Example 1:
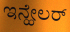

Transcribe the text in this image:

ಇನ್ಹೇಲರ್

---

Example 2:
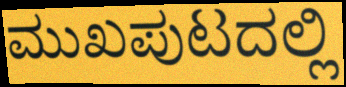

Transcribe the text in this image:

ಮುಖಪುಟದಲ್ಲಿ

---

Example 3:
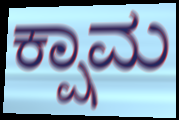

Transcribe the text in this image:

ಕ್ಷಾಮ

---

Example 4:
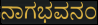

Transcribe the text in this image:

ನಾಗಭವನಂ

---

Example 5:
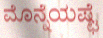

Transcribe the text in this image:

ಮೊನ್ನೆಯಷ್ಟೆ